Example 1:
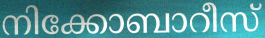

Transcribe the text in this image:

നിക്കോബാറീസ്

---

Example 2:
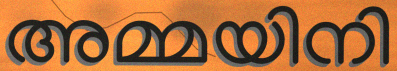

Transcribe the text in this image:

അമ്മയിനി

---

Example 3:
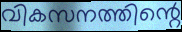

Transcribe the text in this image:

വികസനത്തിന്റെ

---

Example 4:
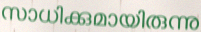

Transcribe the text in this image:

സാധിക്കുമായിരുന്നു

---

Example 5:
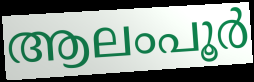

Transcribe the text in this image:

ആലംപൂർ